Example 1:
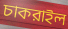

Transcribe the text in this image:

চাকরাইল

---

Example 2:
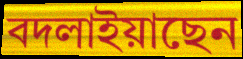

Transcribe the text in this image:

বদলাইয়াছেন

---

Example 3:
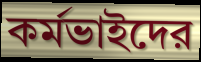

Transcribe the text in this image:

কর্মভাইদের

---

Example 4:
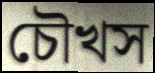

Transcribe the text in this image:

চৌখস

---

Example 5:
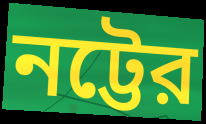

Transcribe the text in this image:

নট্টের